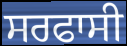
ਸਰਫਾਸੀ